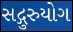
સદ્ગુરુયોગ